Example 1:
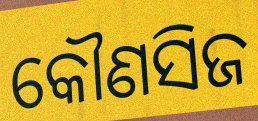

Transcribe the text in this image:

କୌଣସିଜ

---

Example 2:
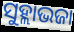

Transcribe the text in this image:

ସୁହ୍ଲାଭଜା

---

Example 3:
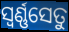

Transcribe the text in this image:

ସ୍ଵର୍ଣ୍ଣସେତୁ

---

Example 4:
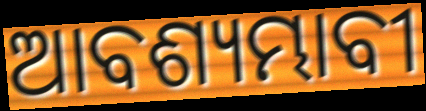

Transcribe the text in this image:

ଆବଶ୍ୟମ୍ଭାବୀ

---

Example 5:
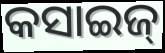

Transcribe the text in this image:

କସାଇଜ୍